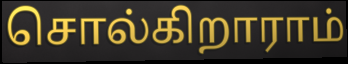
சொல்கிறாராம்